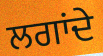
ਲਗਾਂਦੇ